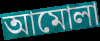
আমোলা